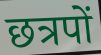
छत्रपों